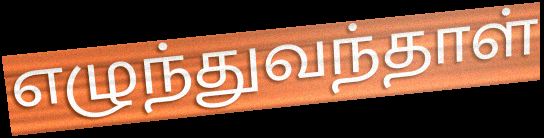
எழுந்துவந்தாள்